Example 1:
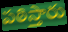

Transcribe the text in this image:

పఠిస్తారు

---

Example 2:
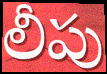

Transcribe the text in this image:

లీపు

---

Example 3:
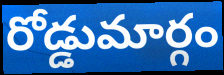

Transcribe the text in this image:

రోడ్డుమార్గం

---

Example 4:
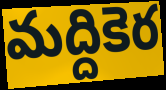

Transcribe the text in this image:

మద్దికెర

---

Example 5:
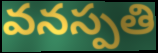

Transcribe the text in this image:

వనస్పతి